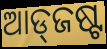
ଆଡ୍‌ଜଷ୍ଟ